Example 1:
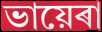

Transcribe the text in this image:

ভায়েৰা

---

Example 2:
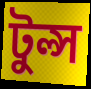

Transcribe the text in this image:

টুল্স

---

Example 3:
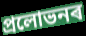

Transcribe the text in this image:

প্ৰলোভনৰ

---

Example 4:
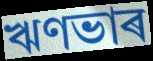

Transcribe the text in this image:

ঋণভাৰ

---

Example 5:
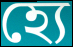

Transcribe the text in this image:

হ্যে